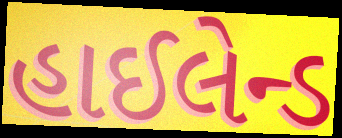
હાઈલેન્ડ